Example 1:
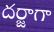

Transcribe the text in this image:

దర్జాగా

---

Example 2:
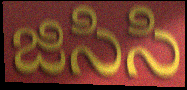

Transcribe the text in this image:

జిసిసి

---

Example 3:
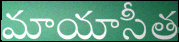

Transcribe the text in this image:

మాయాసీత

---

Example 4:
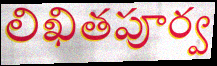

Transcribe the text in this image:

లిఖితపూర్వ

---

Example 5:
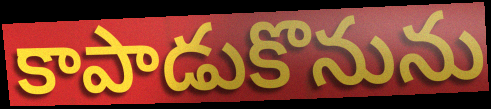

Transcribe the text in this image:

కాపాడుకొనును